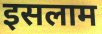
इसलाम